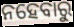
ନହେବାରୁ